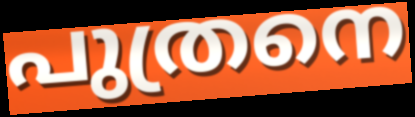
പുത്രനെ